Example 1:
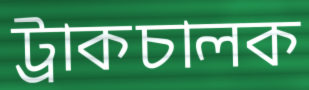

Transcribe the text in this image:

ট্রাকচালক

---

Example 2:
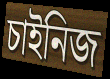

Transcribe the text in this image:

চাইনিজ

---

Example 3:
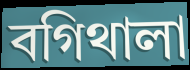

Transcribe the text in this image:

বগিথালা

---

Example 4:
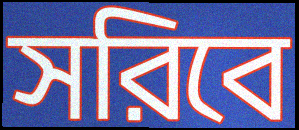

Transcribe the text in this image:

সরিবে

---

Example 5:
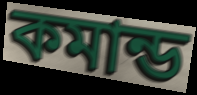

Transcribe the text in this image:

কমান্ড